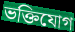
ভক্তিযোগ